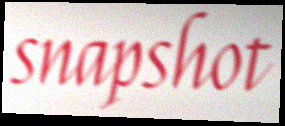
snapshot